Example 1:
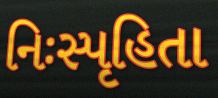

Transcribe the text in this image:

નિઃસ્પૃહિતા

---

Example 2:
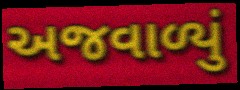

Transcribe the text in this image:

અજવાળ્યું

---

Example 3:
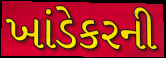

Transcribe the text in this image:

ખાંડેકરની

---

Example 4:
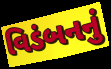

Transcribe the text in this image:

વિડંબનનું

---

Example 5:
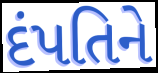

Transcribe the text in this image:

દંપતિને